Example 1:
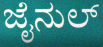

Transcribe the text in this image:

ಜೈನುಲ್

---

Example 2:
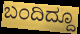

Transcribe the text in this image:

ಬಂದಿದ್ದೂ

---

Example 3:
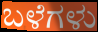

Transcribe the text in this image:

ಬಳೆಗಳು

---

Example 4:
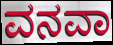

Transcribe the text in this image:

ವನವಾ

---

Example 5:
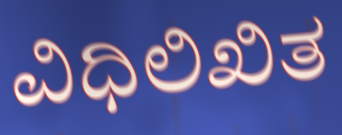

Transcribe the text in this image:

ವಿಧಿಲಿಖಿತ